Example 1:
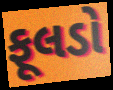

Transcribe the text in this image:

ફૂલડો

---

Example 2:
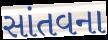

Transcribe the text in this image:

સાંતવના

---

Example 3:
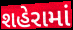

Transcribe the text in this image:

શહેરામાં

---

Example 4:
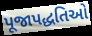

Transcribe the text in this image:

પૂજાપદ્ધતિઓ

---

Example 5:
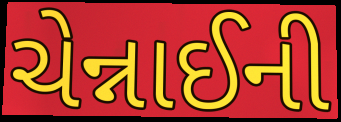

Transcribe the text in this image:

ચેન્નાઈની